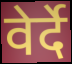
वेर्दे